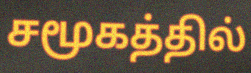
சமூகத்தில்